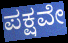
ಪಕ್ಷವೇ